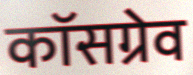
कॉसग्रेव